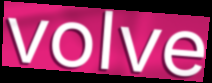
volve